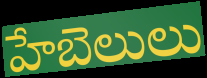
హేబెలులు